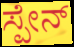
ಸ್ಪೇನ್